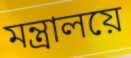
মন্ত্ৰালয়ে